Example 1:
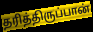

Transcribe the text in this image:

தரித்திருப்பான்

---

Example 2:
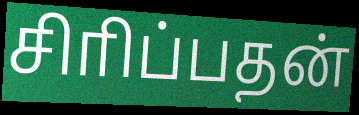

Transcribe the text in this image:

சிரிப்பதன்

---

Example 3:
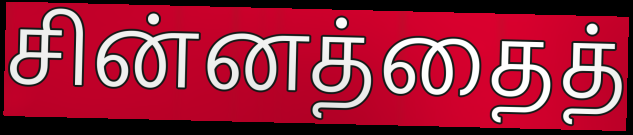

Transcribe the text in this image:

சின்னத்தைத்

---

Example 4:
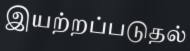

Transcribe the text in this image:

இயற்றப்படுதல்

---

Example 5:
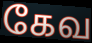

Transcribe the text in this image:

கேவ